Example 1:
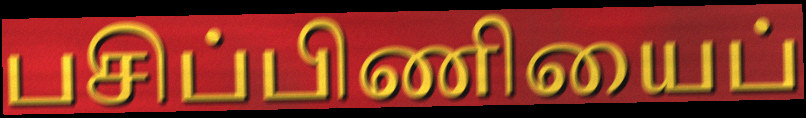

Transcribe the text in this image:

பசிப்பிணியைப்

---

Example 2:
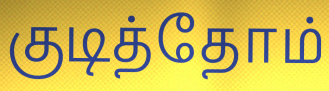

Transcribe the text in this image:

குடித்தோம்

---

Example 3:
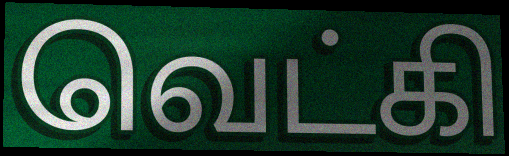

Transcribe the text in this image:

வெட்கி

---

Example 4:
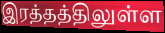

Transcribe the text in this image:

இரத்தத்திலுள்ள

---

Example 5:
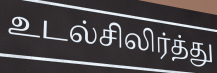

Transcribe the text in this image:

உடல்சிலிர்த்து